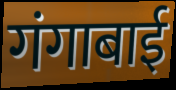
गंगाबाई